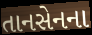
તાનસેનના